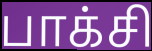
பாக்சி